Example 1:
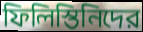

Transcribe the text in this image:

ফিলিস্তিনিদের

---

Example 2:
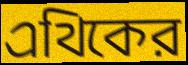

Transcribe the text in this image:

এথিকের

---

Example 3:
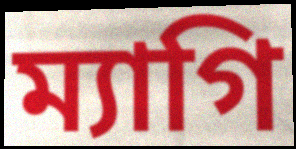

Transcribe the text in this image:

ম্যাগি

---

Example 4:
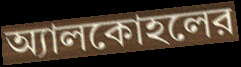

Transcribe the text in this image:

অ্যালকোহলের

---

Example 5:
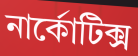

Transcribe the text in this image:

নার্কোটিক্স